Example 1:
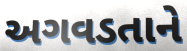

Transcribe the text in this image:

અગવડતાને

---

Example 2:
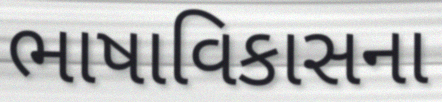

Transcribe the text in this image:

ભાષાવિકાસના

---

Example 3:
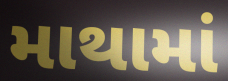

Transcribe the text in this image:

માથામાં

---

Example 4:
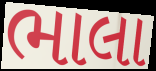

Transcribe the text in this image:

ભાલા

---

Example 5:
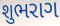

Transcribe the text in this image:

શુભરાગ